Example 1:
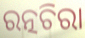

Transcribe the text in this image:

ରତ୍ନଚିରା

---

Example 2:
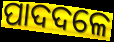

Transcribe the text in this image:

ପାଦଦଳେ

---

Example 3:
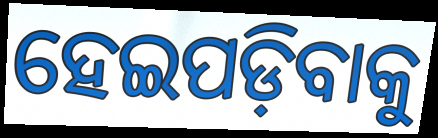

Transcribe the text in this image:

ହେଇପଡ଼ିବାକୁ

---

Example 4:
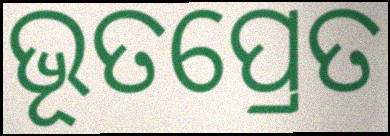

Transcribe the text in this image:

ଭୂତପ୍ରେତ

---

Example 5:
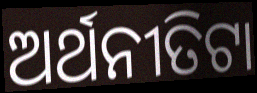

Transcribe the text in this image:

ଅର୍ଥନୀତିଟା